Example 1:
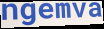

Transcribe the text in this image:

ngemva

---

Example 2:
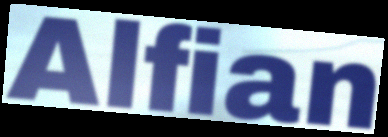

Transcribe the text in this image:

Alfian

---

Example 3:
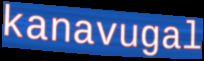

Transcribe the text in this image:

kanavugal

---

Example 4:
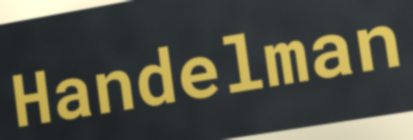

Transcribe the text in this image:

Handelman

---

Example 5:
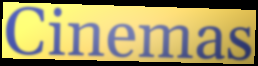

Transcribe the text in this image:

Cinemas